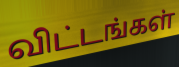
விட்டங்கள்